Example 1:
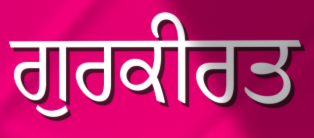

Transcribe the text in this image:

ਗੁਰਕੀਰਤ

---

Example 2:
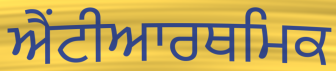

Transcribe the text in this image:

ਐਂਟੀਆਰਥਮਿਕ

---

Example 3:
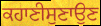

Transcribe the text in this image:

ਕਹਾਣੀਸੁਣਾਉਣ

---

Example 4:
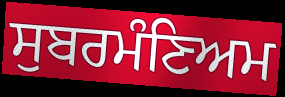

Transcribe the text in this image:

ਸੁਬਰਮੰਣਿਅਮ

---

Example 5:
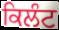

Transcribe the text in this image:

ਕਿਲੰਟ